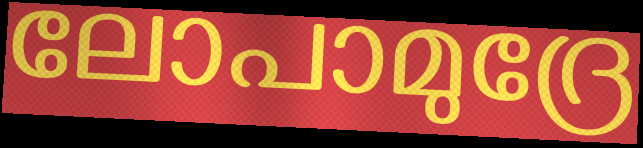
ലോപാമുദ്രേ